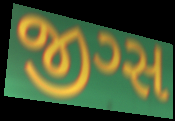
જીગ્સ